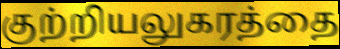
குற்றியலுகரத்தை